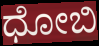
ಧೋಬಿ